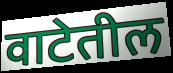
वाटेतील